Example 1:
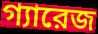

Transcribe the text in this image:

গ্যারেজ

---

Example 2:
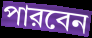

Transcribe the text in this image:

পারবেন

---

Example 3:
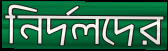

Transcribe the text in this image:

নির্দলদের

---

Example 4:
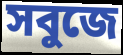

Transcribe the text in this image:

সবুজে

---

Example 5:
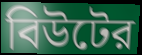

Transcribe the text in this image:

বিউটের